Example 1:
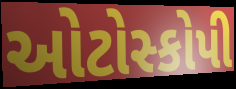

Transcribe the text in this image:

ઓટોસ્કોપી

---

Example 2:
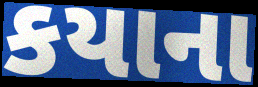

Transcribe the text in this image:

કયાના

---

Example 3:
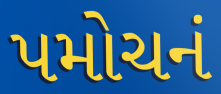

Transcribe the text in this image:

પમોચનં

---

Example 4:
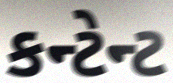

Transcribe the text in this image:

કન્ટેન્ટ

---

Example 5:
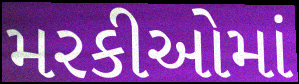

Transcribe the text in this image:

મરકીઓમાં